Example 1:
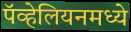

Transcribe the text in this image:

पॅव्हेलियनमध्ये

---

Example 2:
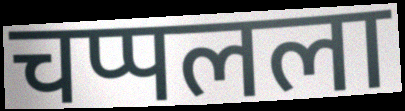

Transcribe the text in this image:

चप्पलला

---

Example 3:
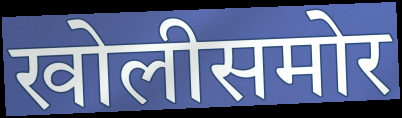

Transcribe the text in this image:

खोलीसमोर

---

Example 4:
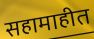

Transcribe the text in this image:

सहामाहीत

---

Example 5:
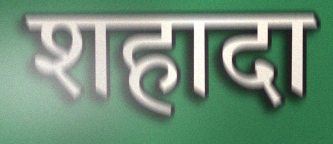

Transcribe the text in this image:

शहादा